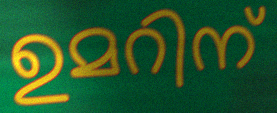
ഉമറിന്